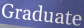
Graduate